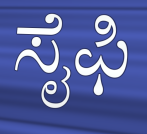
ಸೈಫಿ